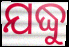
ଯଦ୍ଧୁ